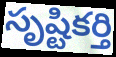
సృష్టికర్తి